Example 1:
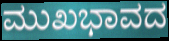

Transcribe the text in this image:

ಮುಖಭಾವದ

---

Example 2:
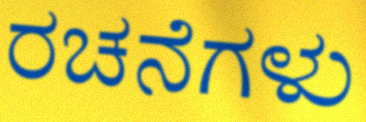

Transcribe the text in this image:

ರಚನೆಗಳು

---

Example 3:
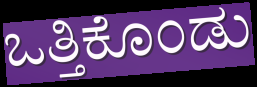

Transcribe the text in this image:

ಒತ್ತಿಕೊಂಡು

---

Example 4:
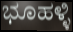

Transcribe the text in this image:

ಭೂಹಳ್ಳಿ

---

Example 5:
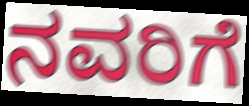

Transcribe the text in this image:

ನವರಿಗೆ